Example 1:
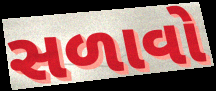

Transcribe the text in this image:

સળાવો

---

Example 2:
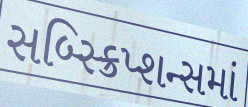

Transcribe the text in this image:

સબ્સ્ક્રિપ્શન્સમાં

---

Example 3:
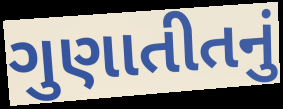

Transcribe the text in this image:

ગુણાતીતનું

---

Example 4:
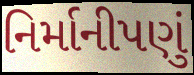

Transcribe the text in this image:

નિર્માનીપણું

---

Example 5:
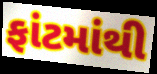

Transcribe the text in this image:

ફાંટમાંથી